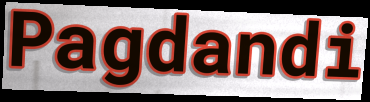
Pagdandi